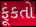
ફૂંકતો